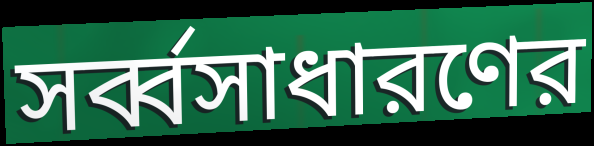
সর্ব্বসাধারণের